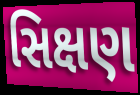
સિક્ષણ